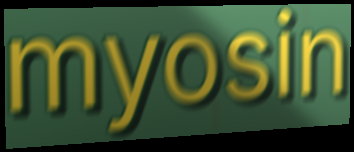
myosin